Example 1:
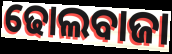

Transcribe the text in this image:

ଢୋଲବାଜା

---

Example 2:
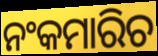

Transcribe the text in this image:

ନଂକମାରିଚ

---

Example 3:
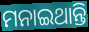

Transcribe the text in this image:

ମନାଇଥାନ୍ତି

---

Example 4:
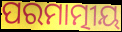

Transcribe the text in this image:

ପରମାତ୍ମୀୟ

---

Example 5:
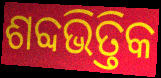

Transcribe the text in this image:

ଶବ୍ଦଭିତ୍ତିକ